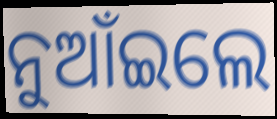
ନୁଆଁଇଲେ